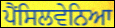
ਪੈਂਸਿਲਵੇਨਿਆ